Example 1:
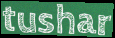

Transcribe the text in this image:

tushar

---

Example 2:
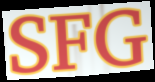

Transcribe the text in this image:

SFG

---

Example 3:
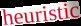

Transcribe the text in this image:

heuristic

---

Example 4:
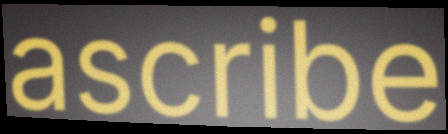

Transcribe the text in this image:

ascribe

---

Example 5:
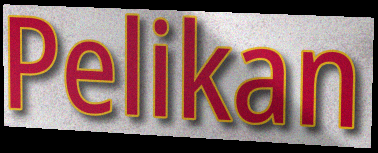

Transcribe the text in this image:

Pelikan